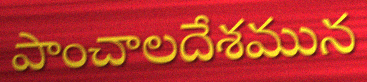
పాంచాలదేశమున